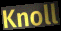
Knoll